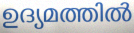
ഉദ്യമത്തിൽ